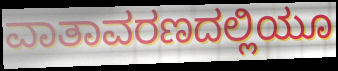
ವಾತಾವರಣದಲ್ಲಿಯೂ